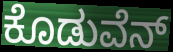
ಕೊಡುವೆನ್